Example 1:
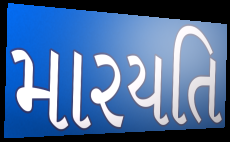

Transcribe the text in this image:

મારયતિ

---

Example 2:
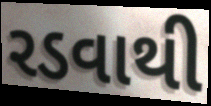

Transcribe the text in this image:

રડવાથી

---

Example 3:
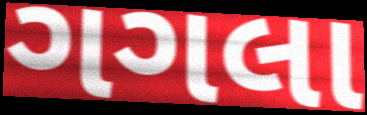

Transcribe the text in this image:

ગગલા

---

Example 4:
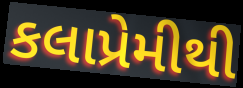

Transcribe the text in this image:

કલાપ્રેમીથી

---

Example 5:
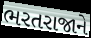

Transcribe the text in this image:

ભરતરાજાને